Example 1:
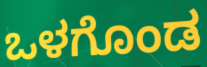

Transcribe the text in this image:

ಒಳಗೊಂಡ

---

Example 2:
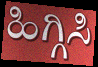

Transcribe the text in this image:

ಹಿಗ್ಗಿಸಿ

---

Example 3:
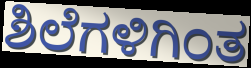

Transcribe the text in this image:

ಶಿಲೆಗಳಿಗಿಂತ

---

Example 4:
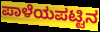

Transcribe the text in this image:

ಪಾಳೆಯಪಟ್ಟಿನ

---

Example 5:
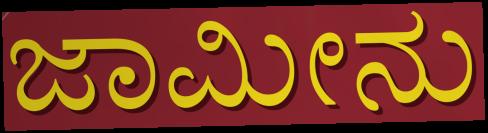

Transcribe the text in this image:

ಜಾಮೀನು